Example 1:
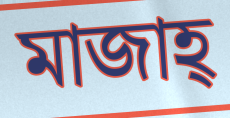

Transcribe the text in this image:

মাজাহ্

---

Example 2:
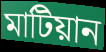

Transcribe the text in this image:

মাটিয়ান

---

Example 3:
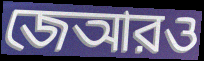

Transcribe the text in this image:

জেআরও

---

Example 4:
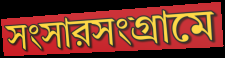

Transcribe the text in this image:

সংসারসংগ্রামে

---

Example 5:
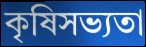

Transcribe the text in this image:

কৃষিসভ্যতা